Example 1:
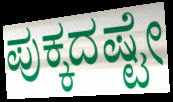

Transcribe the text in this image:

ಪುಕ್ಕದಷ್ಟೇ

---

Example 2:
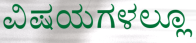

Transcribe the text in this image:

ವಿಷಯಗಳಲ್ಲೂ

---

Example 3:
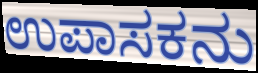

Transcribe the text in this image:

ಉಪಾಸಕನು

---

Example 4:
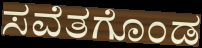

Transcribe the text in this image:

ಸವೆತಗೊಂಡ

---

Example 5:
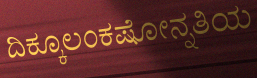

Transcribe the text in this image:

ದಿಕ್ಕೂಲಂಕಷೋನ್ನತಿಯ